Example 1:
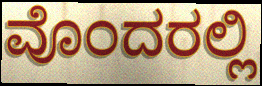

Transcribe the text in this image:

ವೊಂದರಲ್ಲಿ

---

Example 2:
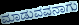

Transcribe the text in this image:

ಮಾಡುವವನಾಗು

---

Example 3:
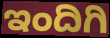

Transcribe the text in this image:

ಇಂದಿಗಿ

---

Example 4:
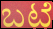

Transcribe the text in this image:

ಬಟೆ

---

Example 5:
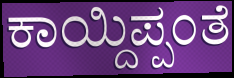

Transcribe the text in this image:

ಕಾಯ್ದಿಪ್ಪಂತೆ